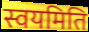
स्वयमिति